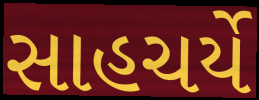
સાહચર્યે